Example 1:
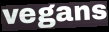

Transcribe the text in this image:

vegans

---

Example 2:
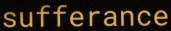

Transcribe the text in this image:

sufferance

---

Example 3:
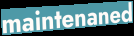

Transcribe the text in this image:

maintenaned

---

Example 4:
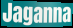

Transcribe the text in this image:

Jaganna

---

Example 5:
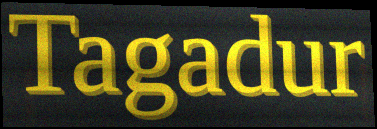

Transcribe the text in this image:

Tagadur